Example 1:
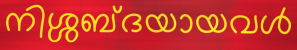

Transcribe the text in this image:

നിശ്ശബ്ദയായവൾ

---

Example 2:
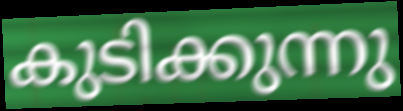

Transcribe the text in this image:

കുടിക്കുന്നു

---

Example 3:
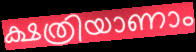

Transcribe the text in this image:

ക്ഷത്രിയാണാം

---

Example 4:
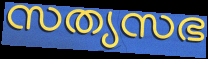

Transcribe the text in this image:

സത്യസഭ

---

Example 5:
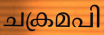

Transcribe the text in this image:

ചക്രമപി